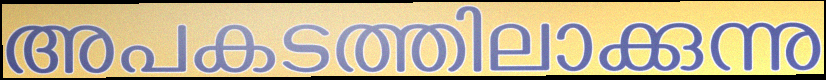
അപകടത്തിലാക്കുന്നു